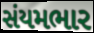
સંયમભાર